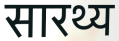
सारथ्य